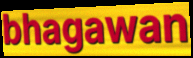
bhagawan